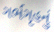
ગર્ભગૃહનું